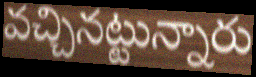
వచ్చినట్టున్నారు